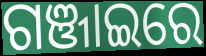
ଗଞ୍ଜାଇରେ